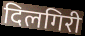
दिलगिरी